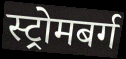
स्ट्रोमबर्ग